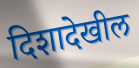
दिशादेखील